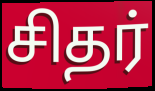
சிதர்